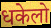
धकेलो